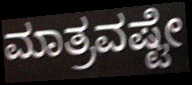
ಮಾತ್ರವಷ್ಟೇ